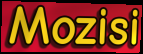
Mozisi